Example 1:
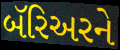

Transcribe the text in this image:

બૅરિઅરને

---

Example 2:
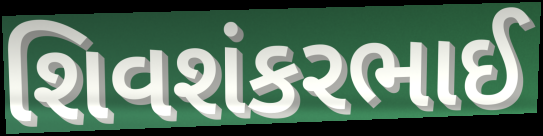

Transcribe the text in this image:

શિવશંકરભાઈ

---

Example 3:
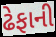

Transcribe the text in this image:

ઢેફાની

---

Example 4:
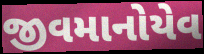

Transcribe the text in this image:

જીવમાનોયેવ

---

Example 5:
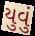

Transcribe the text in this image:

યુવું